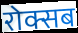
रोक्सब